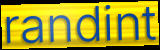
randint